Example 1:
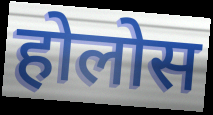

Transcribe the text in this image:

होलोस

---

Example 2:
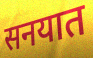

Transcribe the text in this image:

सनयात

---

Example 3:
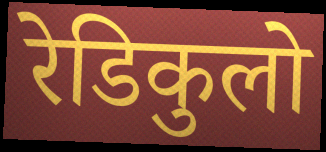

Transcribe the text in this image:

रेडिकुलो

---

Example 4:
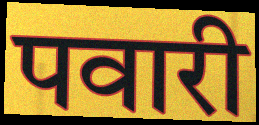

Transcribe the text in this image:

पवारी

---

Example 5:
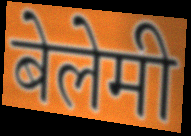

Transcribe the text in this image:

बेलेमी